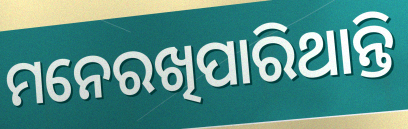
ମନେରଖିପାରିଥାନ୍ତି